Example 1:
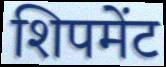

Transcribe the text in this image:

शिपमेंट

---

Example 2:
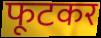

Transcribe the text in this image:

फूटकर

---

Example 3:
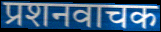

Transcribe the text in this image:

प्रशनवाचक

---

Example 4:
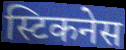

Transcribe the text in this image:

स्टिकनेस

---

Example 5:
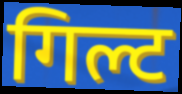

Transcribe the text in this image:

गिल्ट